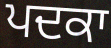
ਪਦਕਾ